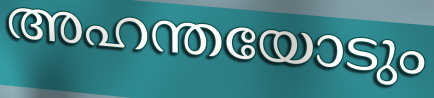
അഹന്തയോടും